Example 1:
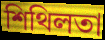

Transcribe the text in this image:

শিথিলতা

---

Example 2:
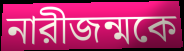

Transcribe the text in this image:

নারীজন্মকে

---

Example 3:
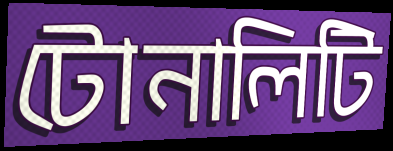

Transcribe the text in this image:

টোনালিটি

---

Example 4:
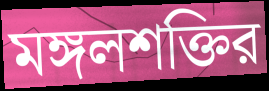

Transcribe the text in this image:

মঙ্গলশক্তির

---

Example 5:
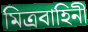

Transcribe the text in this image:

মিত্রবাহিনী